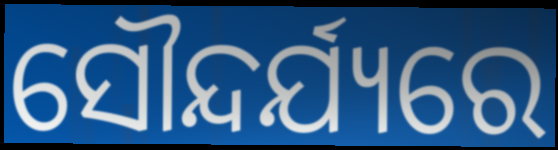
ସୌନ୍ଦର୍ଯ୍ୟରେ